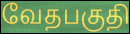
வேதபகுதி